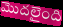
మొదలైంది